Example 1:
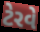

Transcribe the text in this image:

ટેરવે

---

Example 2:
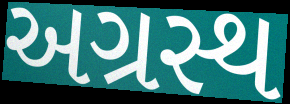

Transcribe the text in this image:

અગ્રસ્થ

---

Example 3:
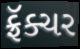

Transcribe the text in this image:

ફ્રૅક્ચર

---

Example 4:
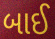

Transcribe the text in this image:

બાઈ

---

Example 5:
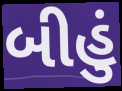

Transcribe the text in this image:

બીહું